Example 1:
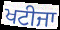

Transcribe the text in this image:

ਖਟੀਜਾ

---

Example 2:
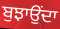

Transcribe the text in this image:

ਬੁਝਾਉਂਦਾ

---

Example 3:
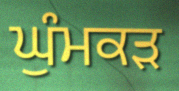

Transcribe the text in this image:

ਘੁੰਮਕੜ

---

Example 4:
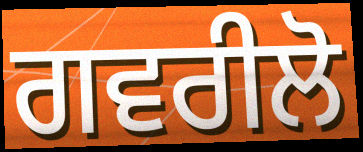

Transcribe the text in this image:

ਗਵਰੀਲੋ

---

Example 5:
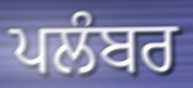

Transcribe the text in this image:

ਪਲੰਬਰ